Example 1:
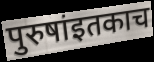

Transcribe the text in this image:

पुरुषांइतकाच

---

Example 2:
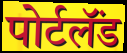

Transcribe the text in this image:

पोर्टलॅंड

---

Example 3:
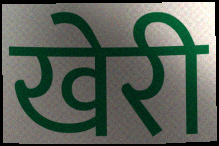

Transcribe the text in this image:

खेरी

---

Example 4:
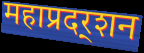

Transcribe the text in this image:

महाप्रदर्शन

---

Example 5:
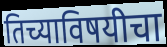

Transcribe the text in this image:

तिच्याविषयीचा